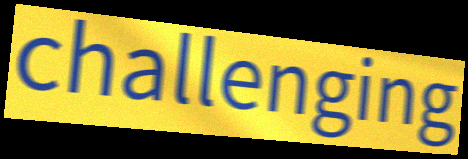
challenging